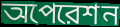
অপেরেশন